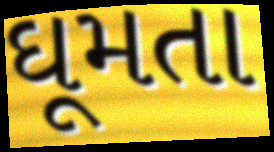
ઘૂમતા